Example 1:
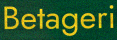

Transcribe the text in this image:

Betageri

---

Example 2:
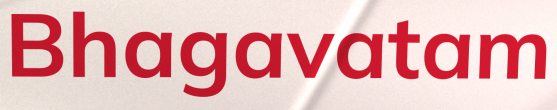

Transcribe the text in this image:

Bhagavatam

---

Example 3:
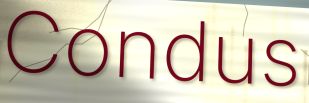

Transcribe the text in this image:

Condus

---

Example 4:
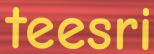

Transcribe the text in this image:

teesri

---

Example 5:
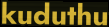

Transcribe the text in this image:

kuduthu